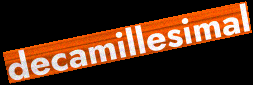
decamillesimal